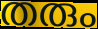
തരും